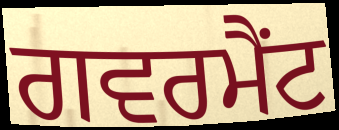
ਗਵਰਮੈਂਟ